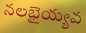
నలభైయ్యవ